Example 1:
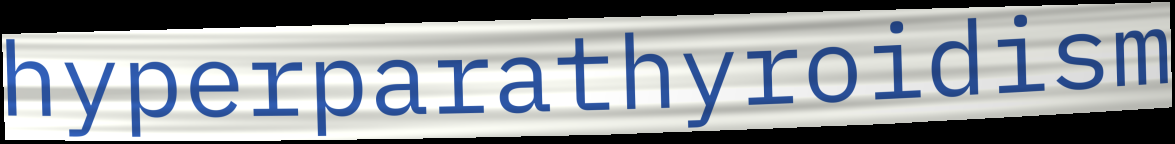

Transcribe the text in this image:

hyperparathyroidism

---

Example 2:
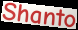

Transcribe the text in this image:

Shanto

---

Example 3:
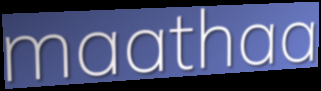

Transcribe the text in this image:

maathaa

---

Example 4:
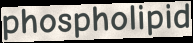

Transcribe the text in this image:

phospholipid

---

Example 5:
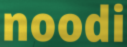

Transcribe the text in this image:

noodi